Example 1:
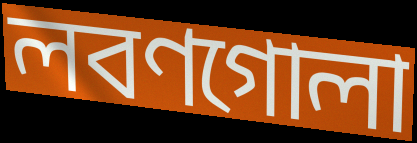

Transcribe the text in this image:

লবণগোলা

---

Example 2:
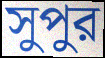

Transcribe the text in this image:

সুপুর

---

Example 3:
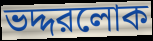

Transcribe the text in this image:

ভদ্দরলোক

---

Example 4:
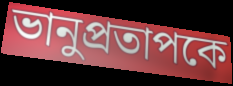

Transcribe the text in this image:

ভানুপ্রতাপকে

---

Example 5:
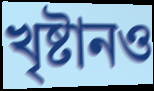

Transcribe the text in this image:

খৃষ্টানও